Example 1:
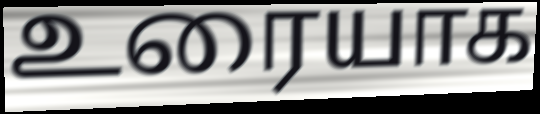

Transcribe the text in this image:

உரையாக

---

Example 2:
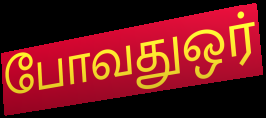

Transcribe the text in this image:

போவதுஒர்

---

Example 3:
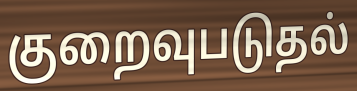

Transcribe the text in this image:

குறைவுபடுதல்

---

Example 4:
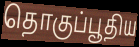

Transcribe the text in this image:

தொகுப்பூதிய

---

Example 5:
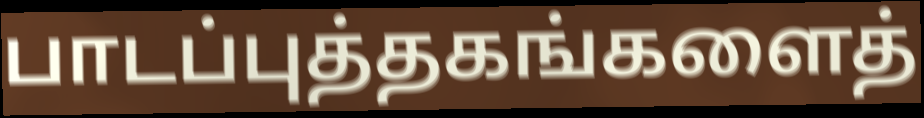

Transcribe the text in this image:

பாடப்புத்தகங்களைத்